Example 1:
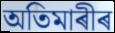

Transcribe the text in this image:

অতিমাৰীৰ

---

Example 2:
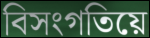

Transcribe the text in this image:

বিসংগতিয়ে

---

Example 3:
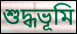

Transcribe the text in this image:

শুদ্ধভূমি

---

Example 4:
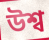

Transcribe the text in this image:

উশ্ব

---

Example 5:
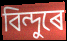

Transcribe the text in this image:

বিন্দুৰে